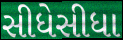
સીધેસીધા